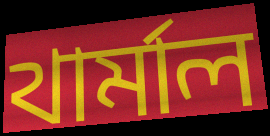
থার্মাল